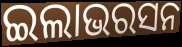
ଇଲାଭରସନ